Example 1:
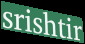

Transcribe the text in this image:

srishtir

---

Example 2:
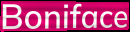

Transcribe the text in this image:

Boniface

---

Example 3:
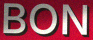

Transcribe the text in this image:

BON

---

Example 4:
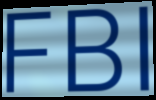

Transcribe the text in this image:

FBI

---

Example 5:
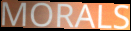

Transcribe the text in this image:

MORALS